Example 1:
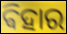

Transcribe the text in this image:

ଵିହାର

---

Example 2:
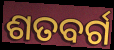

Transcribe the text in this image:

ଶତବର୍ଗ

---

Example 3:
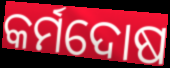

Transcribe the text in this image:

କର୍ମଦୋଷ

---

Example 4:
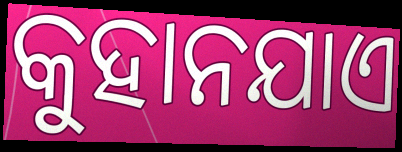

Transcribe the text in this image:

କୁହାନଯାଏ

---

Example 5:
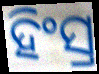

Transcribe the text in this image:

ହିଂସ୍ର